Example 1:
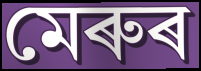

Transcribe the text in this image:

মেৰুৰ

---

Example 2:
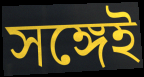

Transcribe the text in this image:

সঙ্গেই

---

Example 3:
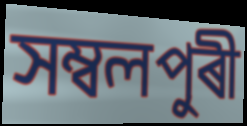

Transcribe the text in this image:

সম্বলপুৰী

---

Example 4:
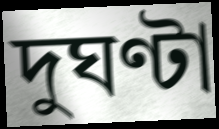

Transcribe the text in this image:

দুঘণ্টা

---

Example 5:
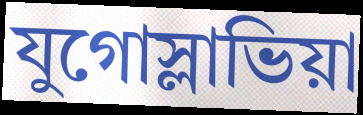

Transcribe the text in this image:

যুগোস্লাভিয়া